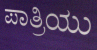
ಪಾತ್ರಿಯು